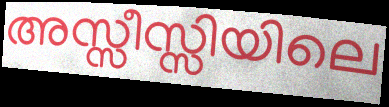
അസ്സീസ്സിയിലെ